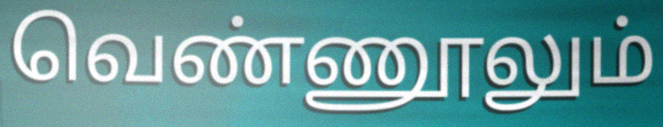
வெண்ணூலும்